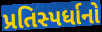
પ્રતિસ્પર્ધાનો